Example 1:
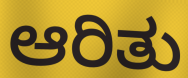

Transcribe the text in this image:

ಆರಿತು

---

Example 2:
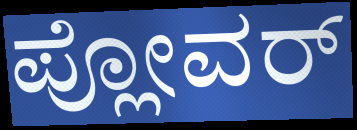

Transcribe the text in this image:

ಪ್ಲೋವರ್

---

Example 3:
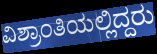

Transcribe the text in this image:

ವಿಶ್ರಾಂತಿಯಲ್ಲಿದ್ದರು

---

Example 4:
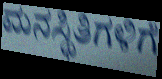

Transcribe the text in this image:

ಮನಸ್ಥಿತಿಗಳಿಗೆ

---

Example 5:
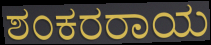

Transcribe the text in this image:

ಶಂಕರರಾಯ